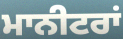
ਮਾਨੀਟਰਾਂ